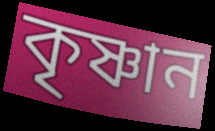
কৃষ্ণান